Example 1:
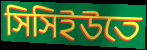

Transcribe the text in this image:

সিসিইউতে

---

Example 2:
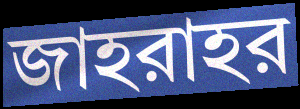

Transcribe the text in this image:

জাহরাহর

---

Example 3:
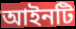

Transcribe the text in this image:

আইনটি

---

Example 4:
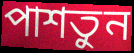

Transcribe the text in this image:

পাশতুন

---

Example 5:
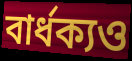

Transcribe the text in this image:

বার্ধক্যও